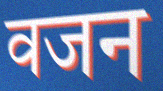
वजन